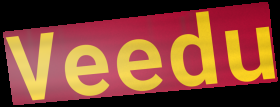
Veedu